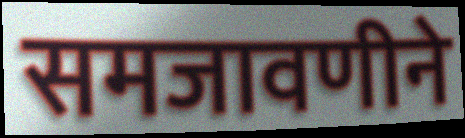
समजावणीने